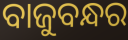
ବାଜୁବନ୍ଧର